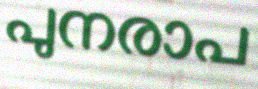
പുനരാപ